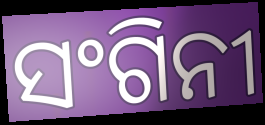
ସଂଗିନୀ